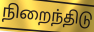
நிறைந்திடு